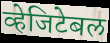
व्हेजिटेबल